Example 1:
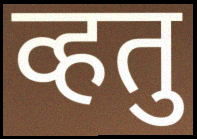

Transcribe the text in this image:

व्हतु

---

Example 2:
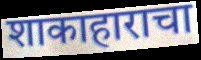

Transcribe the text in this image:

शाकाहाराचा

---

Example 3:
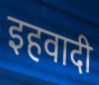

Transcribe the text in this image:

इहवादी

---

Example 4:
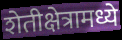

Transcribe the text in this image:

शेतीक्षेत्रामध्ये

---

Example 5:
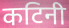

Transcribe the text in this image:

कटिनी